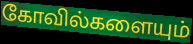
கோவில்களையும்